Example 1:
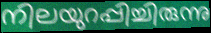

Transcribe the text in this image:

നിലയുറപ്പിച്ചിരുന്നു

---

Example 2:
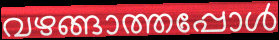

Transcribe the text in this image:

വഴങ്ങാത്തപ്പോൾ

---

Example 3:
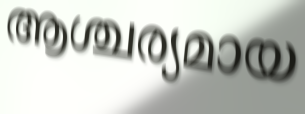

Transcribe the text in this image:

ആശ്ചര്യമായ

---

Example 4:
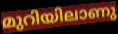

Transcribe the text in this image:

മുറിയിലാണു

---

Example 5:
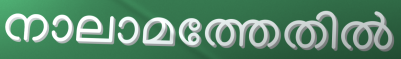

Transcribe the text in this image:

നാലാമത്തേതിൽ